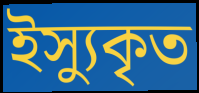
ইস্যুকৃত